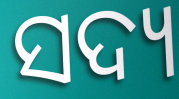
ସଦ୍ଯ